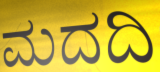
ಮದದಿ